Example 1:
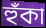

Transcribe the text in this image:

হুঁকা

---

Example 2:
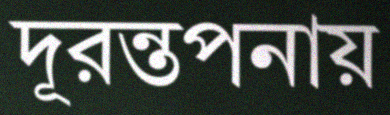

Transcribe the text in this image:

দূরন্তপনায়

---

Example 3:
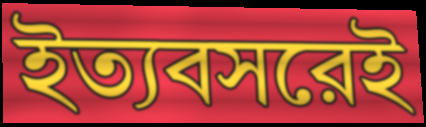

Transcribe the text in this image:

ইত্যবসরেই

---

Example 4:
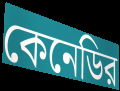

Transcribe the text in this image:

কেনেডির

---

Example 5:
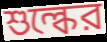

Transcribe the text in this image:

শুল্কের